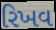
રિખવ